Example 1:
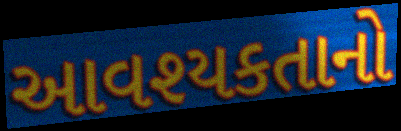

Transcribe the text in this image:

આવશ્યકતાનો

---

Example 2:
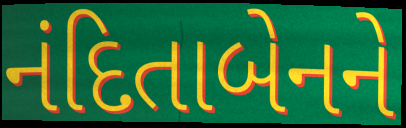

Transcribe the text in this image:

નંદિતાબેનને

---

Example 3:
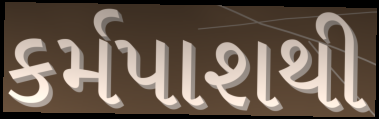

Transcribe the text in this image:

કર્મપાશથી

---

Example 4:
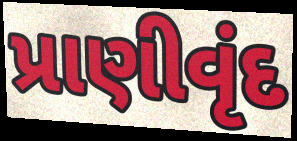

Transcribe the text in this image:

પ્રાણીવૃંદ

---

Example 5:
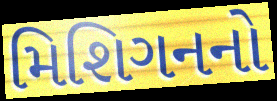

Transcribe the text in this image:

મિશિગનનો